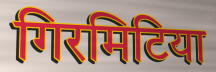
गिरमिटिया